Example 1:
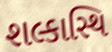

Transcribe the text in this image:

શલ્કાસ્થિ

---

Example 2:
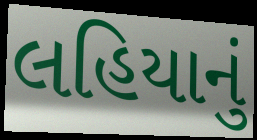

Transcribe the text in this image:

લહિયાનું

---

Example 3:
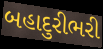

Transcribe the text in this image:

બહાદુરીભરી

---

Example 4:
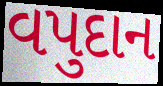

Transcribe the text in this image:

વપુદાન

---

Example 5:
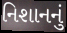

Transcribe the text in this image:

નિશાનનું